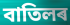
বাতিলৰ